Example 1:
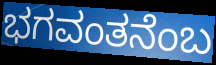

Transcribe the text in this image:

ಭಗವಂತನೆಂಬ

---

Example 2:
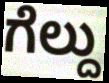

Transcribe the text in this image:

ಗೆಲ್ದು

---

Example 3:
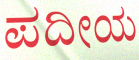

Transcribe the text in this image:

ಪದೀಯ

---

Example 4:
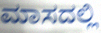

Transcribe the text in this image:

ಮಾಸದಲ್ಲಿ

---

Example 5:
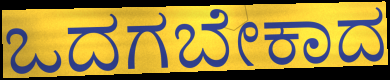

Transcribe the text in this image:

ಒದಗಬೇಕಾದ